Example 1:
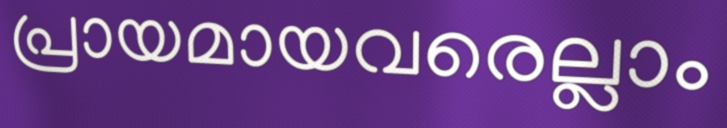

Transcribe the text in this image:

പ്രായമായവരെല്ലാം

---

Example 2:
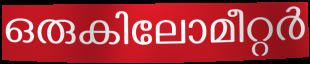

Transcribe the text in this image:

ഒരുകിലോമീറ്റർ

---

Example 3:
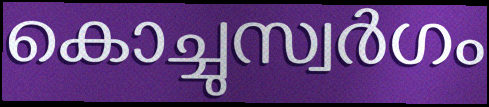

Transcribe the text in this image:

കൊച്ചുസ്വർഗം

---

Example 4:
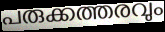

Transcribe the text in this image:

പരുക്കത്തരവും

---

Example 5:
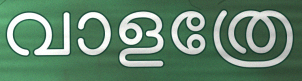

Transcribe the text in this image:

വാളത്രേ